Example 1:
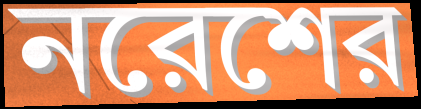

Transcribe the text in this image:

নরেশের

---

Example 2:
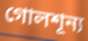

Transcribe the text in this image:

গোলশূন্য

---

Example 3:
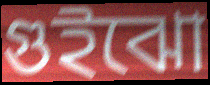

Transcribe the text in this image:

গুইঝো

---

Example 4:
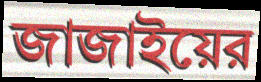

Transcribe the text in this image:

জাজাইয়ের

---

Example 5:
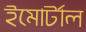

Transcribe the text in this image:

ইমোর্টাল